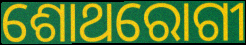
ଶୋଥରୋଗୀ